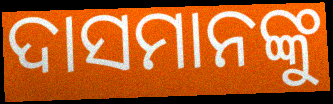
ଦାସମାନଙ୍କୁ